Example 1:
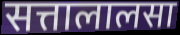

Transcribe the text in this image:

सत्तालालसा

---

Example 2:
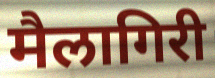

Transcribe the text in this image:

मैलागिरी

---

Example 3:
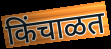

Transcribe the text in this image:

किंचाळत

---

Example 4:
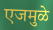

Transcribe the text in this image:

एजमुळे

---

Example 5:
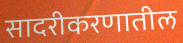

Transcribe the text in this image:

सादरीकरणातील